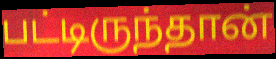
பட்டிருந்தான்